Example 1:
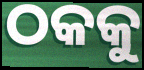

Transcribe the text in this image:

ଠକକୁ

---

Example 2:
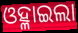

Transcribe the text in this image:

ଓହ୍ଳାଇଲା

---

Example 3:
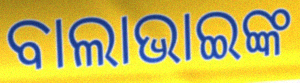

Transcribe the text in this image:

ବାଲାଭାଇଙ୍କ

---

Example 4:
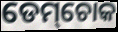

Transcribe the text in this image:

ଡେମ୍‌ଚୋକ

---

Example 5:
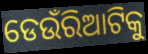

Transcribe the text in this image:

ଡେଉଁରିଆଟିକୁ